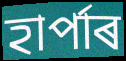
হাৰ্পাৰ